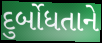
દુર્બોધતાને